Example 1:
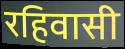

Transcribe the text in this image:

रहिवासी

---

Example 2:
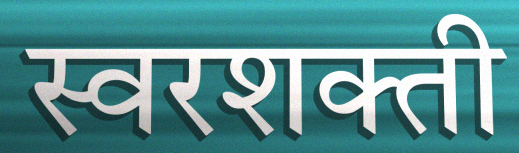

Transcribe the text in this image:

स्वरशक्ती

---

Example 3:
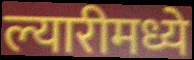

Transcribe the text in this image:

ल्यारीमध्ये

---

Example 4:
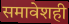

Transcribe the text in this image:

समावेशही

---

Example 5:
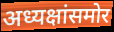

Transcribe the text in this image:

अध्यक्षांसमोर